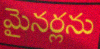
మైనర్లను